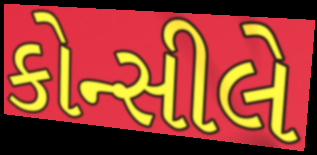
કોન્સીલે